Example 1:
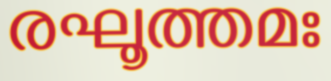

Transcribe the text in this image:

രഘൂത്തമഃ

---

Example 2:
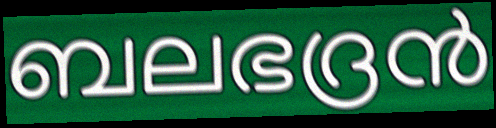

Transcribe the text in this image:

ബലഭദ്രൻ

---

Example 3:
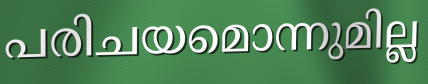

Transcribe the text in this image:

പരിചയമൊന്നുമില്ല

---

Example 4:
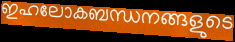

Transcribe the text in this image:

ഇഹലോകബന്ധനങ്ങളുടെ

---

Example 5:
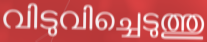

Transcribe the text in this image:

വിടുവിച്ചെടുത്തു